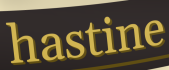
hastine